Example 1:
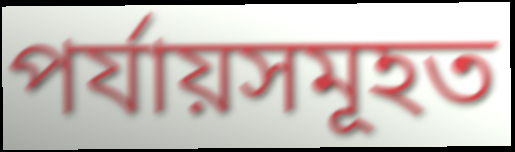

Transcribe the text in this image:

পৰ্যায়সমূহত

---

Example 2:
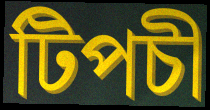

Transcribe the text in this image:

টিপচী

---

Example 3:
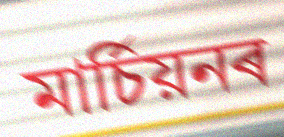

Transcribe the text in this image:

মাৰ্চিয়নৰ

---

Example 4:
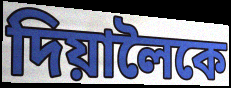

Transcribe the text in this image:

দিয়ালৈকে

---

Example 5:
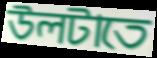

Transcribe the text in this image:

উলটাতে